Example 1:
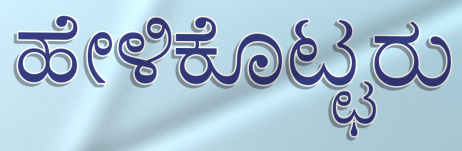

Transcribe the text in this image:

ಹೇಳಿಕೊಟ್ಟರು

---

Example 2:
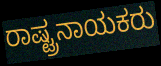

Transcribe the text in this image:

ರಾಷ್ಟ್ರನಾಯಕರು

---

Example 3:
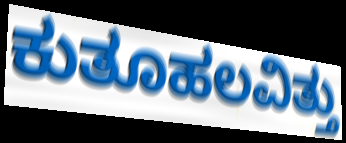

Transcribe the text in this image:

ಕುತೂಹಲವಿತ್ತು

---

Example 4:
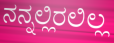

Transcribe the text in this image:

ನನ್ನಲ್ಲಿರಲಿಲ್ಲ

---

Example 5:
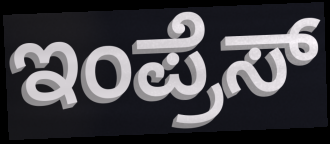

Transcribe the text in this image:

ಇಂಪ್ರೆಸ್